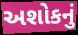
અશોકનું